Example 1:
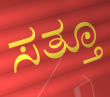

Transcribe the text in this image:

ಸತ್ತೂ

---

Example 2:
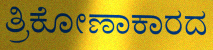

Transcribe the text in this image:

ತ್ರಿಕೋಣಾಕಾರದ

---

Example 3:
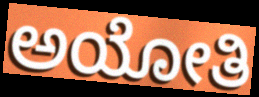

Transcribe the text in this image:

ಅಯೋತಿ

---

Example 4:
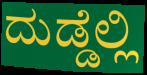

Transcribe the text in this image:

ದುಡ್ಡೆಲ್ಲಿ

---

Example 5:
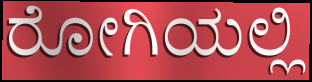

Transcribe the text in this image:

ರೋಗಿಯಲ್ಲಿ